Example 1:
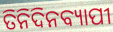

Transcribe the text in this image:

ତିନିଦିନବ୍ୟାପୀ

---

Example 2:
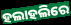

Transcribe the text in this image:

ହଲାହଲିରେ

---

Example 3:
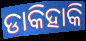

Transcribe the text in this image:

ଡାକିହାକି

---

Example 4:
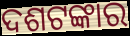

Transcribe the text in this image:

ଦଶଟଙ୍କାର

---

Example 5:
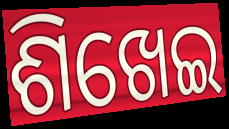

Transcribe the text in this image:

ଶିଖେଇ